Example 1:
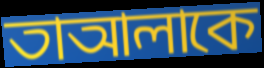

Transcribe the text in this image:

তাআলাকে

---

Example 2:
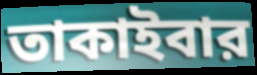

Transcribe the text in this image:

তাকাইবার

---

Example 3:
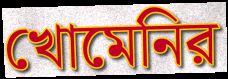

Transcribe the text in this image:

খোমেনির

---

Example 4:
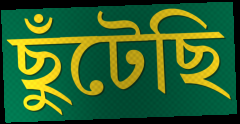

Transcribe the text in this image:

ছুঁটেছি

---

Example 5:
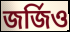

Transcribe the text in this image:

জর্জিও